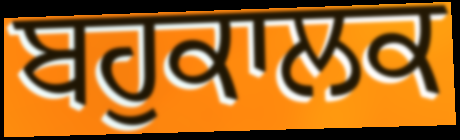
ਬਹੁਕਾਲਕ